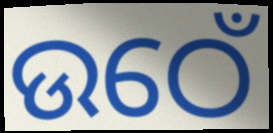
ଉଠେଁ